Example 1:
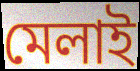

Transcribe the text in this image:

মেলাই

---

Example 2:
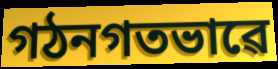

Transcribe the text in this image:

গঠনগতভাৱে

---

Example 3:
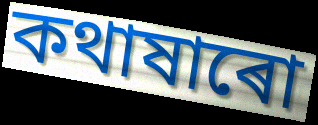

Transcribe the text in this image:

কথাষাৰো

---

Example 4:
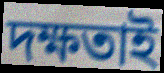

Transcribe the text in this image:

দক্ষতাই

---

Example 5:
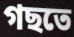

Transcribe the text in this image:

গছতে